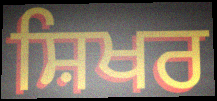
ਸ਼ਿਖਰ